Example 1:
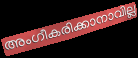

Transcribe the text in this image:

അംഗീകരിക്കാനാവില്ല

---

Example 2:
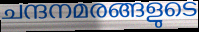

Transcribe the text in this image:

ചന്ദനമരങ്ങളുടെ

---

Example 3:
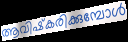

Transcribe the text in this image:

ആവിഷ്‌കരിക്കുമ്പോൾ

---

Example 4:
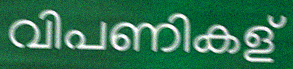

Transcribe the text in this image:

വിപണികള്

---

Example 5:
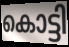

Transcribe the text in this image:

കൊട്ടി